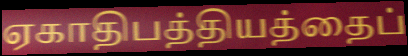
ஏகாதிபத்தியத்தைப்